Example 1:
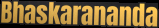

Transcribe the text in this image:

Bhaskarananda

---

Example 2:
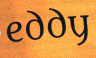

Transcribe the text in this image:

eddy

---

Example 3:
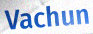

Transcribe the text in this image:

Vachun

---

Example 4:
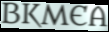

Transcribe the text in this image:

BKMEA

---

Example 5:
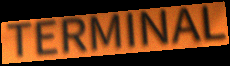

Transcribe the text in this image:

TERMINAL